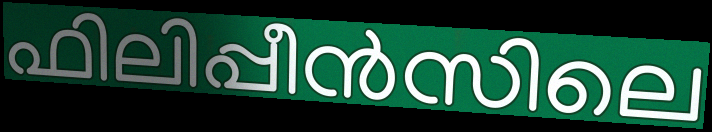
ഫിലിപ്പീൻസിലെ